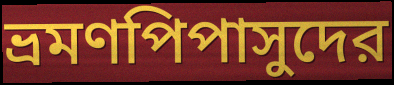
ভ্রমণপিপাসুদের